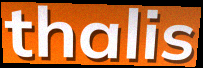
thalis